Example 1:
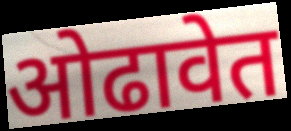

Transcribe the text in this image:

ओढावेत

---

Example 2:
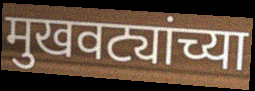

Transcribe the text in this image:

मुखवट्यांच्या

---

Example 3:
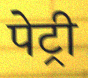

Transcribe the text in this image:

पेट्री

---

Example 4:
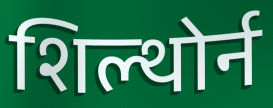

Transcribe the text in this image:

शिल्थोर्न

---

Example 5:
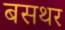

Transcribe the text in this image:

बसथर